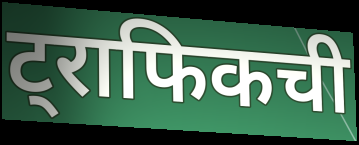
ट्राफिकची